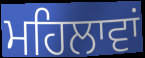
ਮਹਿਲਾਵਾਂ